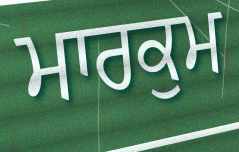
ਮਾਰਕੁਮ